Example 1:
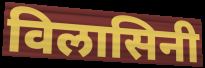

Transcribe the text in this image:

विलासिनी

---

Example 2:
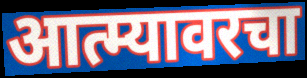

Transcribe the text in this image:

आत्म्यावरचा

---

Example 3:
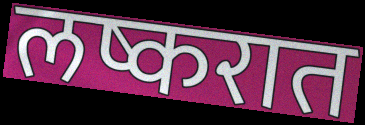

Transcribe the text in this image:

लष्करात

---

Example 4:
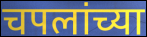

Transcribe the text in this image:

चपलांच्या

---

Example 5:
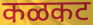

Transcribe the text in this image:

कळकट